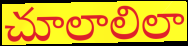
చూలాలిలా